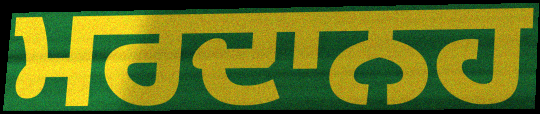
ਮਰਦਾਨਹ